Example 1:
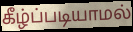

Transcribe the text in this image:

கீழ்ப்படியாமல்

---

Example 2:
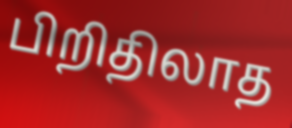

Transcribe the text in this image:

பிறிதிலாத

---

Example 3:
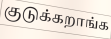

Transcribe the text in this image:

குடுக்கறாங்க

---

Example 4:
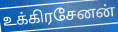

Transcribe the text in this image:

உக்கிரசேனன்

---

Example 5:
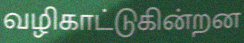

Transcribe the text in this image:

வழிகாட்டுகின்றன